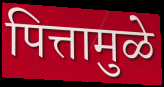
पित्तामुळे